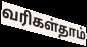
வரிகள்தாம்